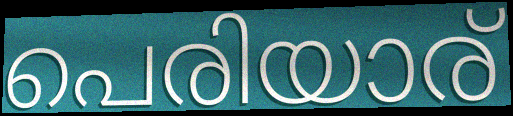
പെരിയാര്